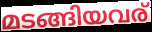
മടങ്ങിയവര്